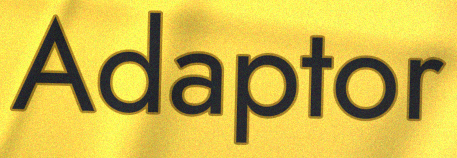
Adaptor